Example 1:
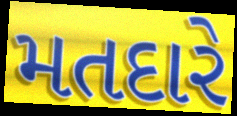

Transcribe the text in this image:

મતદારે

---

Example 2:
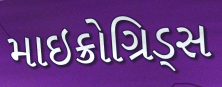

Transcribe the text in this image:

માઇક્રોગ્રિડ્સ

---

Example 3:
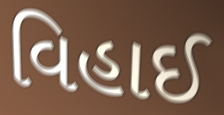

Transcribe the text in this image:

વિહાઈ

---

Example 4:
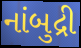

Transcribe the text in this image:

નાંબુદ્રી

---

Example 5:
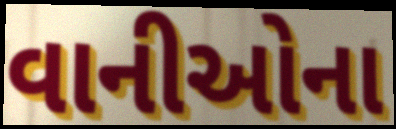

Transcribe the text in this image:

વાનીઓના